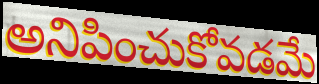
అనిపించుకోవడమే